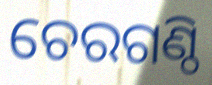
ଚେରଗଣ୍ଠି